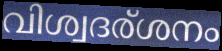
വിശ്വദര്ശനം